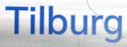
Tilburg